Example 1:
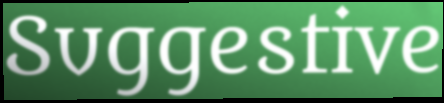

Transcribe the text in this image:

Suggestive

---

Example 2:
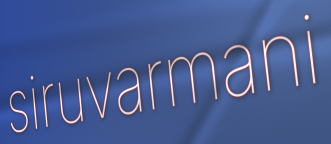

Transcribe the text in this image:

siruvarmani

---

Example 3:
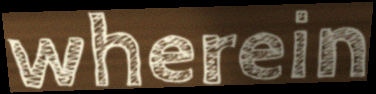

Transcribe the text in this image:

wherein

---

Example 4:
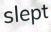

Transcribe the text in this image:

slept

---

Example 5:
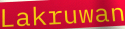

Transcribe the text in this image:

Lakruwan